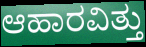
ಆಹಾರವಿತ್ತು